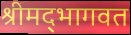
श्रीमद्भागवत